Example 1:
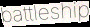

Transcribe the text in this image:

battleship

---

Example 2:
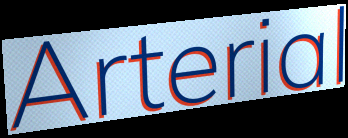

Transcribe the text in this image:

Arterial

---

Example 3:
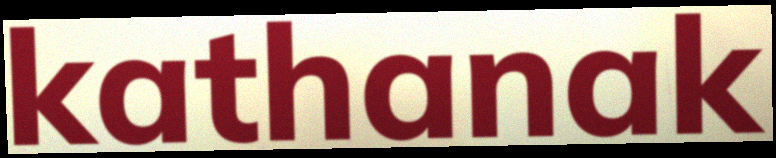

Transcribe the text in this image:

kathanak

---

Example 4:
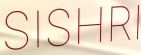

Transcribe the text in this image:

SISHRI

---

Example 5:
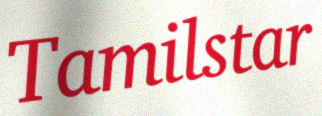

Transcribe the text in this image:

Tamilstar